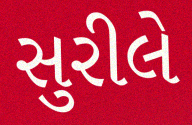
સુરીલે